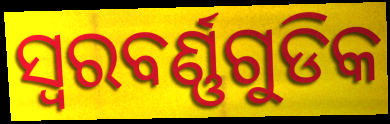
ସ୍ୱରବର୍ଣ୍ଣଗୁଡିକ